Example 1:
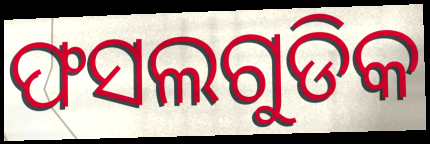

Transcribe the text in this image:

ଫସଲଗୁଡିକ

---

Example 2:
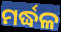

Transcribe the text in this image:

ମର୍ଦ୍ଧଳ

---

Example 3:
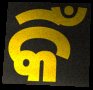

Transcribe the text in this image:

କିଁ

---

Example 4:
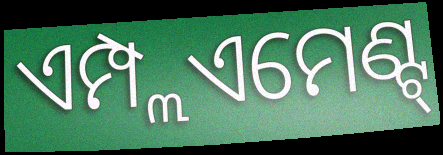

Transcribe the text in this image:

ଏମ୍ପ୍ଲଏମେଣ୍ଟ୍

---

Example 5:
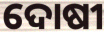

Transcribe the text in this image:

ଦୋଷୀ